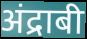
अंद्राबी